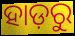
ହାଡ଼ରୁ